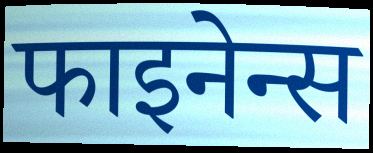
फाइनेन्स